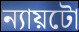
ন্যায়টো